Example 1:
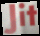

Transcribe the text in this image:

Jit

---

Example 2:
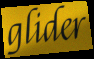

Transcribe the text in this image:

glider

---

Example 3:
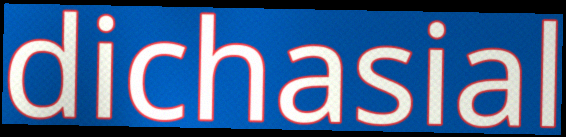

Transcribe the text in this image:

dichasial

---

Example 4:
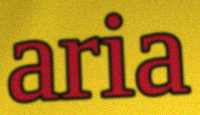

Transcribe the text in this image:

aria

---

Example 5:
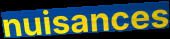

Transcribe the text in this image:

nuisances